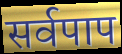
सर्वपाप